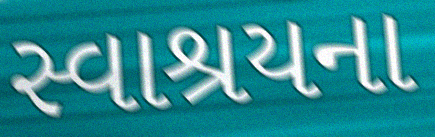
સ્વાશ્રયના